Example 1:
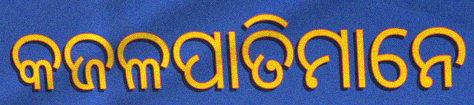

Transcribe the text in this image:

କଜଳପାତିମାନେ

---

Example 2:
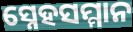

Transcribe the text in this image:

ସ୍ନେହସମ୍ମାନ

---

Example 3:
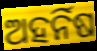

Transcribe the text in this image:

ଅହର୍ନିଷ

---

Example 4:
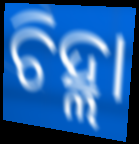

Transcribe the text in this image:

ଚିହ୍ଲା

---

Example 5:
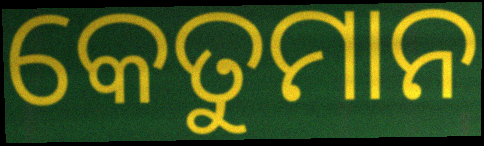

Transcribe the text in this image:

କେତୁମାନ